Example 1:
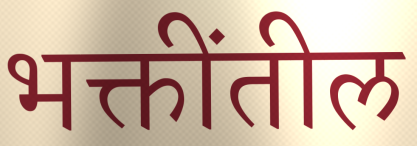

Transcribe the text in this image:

भक्तींतील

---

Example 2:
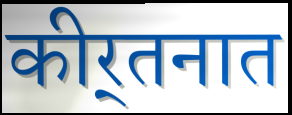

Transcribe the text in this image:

कीर्तनात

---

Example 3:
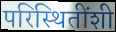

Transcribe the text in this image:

परिस्थितींशी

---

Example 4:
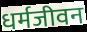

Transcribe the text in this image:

धर्मजीवन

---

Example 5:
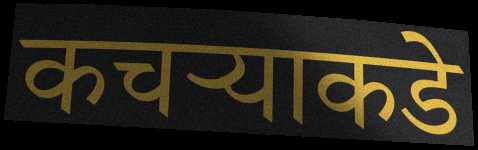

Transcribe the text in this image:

कचऱ्याकडे